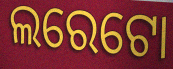
ଲରେଟୋ